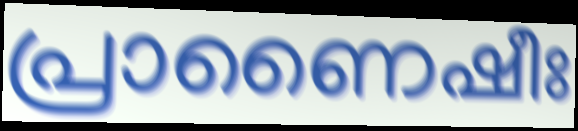
പ്രാണൈഷീഃ